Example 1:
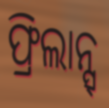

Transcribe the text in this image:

ଫ୍ରିଲାନ୍ସ୍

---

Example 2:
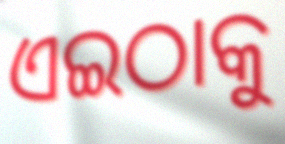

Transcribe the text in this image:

ଏଇଠାକୁ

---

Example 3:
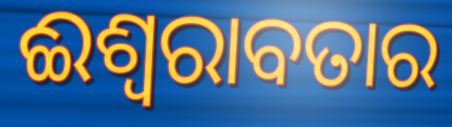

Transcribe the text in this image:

ଈଶ୍ୱରାବତାର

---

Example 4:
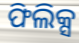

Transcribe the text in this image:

ଫିଲିକ୍ସ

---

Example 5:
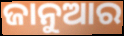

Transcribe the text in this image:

ଜାନୁଆର